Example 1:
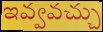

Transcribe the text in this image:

ఇవ్వవచ్చు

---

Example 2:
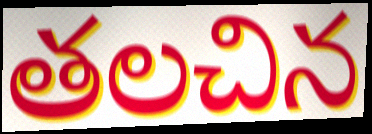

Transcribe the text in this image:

తలచిన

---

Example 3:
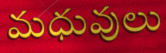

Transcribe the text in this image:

మధువులు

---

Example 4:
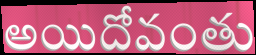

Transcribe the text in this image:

అయిదోవంతు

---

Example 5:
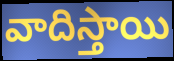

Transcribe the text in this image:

వాదిస్తాయి